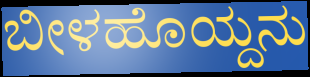
ಬೀಳಹೊಯ್ದನು